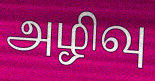
அழிவு